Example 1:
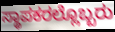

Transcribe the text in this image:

ಸ್ಥಾಪಕರಲ್ಲೊಬ್ಬರು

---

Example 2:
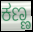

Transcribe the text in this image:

ಕಣ್ಣ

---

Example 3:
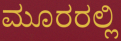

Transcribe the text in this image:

ಮೂರರಲ್ಲಿ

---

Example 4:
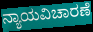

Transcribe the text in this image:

ನ್ಯಾಯವಿಚಾರಣೆ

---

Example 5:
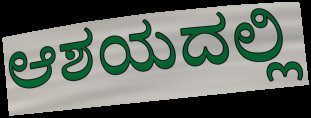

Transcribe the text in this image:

ಆಶಯದಲ್ಲಿ